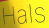
Hals